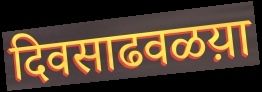
दिवसाढवळय़ा